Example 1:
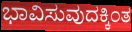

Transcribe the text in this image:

ಭಾವಿಸುವುದಕ್ಕಿಂತ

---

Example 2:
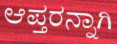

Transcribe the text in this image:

ಆಪ್ತರನ್ನಾಗಿ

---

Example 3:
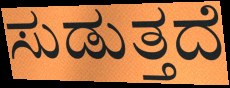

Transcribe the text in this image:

ಸುಡುತ್ತದೆ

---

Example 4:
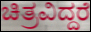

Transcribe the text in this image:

ಚಿತ್ರವಿದ್ದರೆ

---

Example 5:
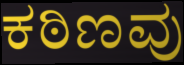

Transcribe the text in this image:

ಕಠಿಣವು